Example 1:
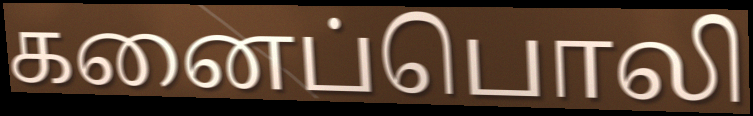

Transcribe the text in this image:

கனைப்பொலி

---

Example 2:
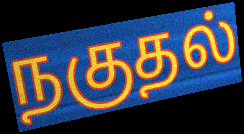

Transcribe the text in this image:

நகுதல்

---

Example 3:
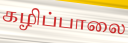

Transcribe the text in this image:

கழிப்பாலை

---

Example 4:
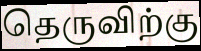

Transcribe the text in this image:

தெருவிற்கு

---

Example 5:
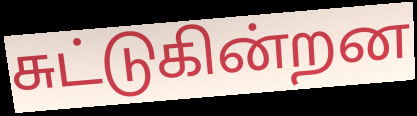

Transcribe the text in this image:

சுட்டுகின்றன